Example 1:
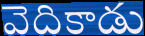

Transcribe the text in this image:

వెదికాడు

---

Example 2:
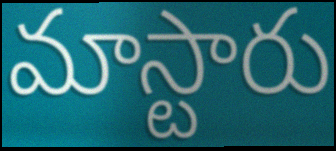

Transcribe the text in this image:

మాస్టారు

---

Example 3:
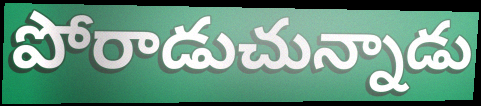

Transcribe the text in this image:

పోరాడుచున్నాడు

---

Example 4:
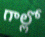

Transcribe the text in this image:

గాల్లో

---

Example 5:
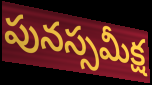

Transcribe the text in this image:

పునస్సమీక్ష